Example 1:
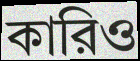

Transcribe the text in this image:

কারিও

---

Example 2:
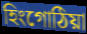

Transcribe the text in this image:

হিংগোঠিয়া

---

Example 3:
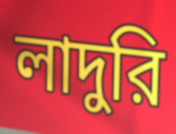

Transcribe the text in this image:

লাদুরি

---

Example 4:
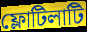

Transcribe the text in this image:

ফ্লোটিলাটি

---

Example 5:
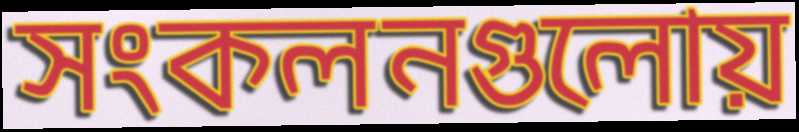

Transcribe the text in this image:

সংকলনগুলোয়